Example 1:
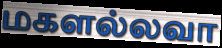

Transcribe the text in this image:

மகளல்லவா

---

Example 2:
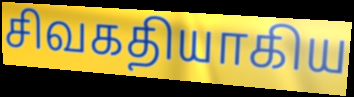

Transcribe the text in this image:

சிவகதியாகிய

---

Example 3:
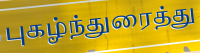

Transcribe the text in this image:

புகழ்ந்துரைத்து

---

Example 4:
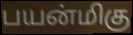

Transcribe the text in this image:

பயன்மிகு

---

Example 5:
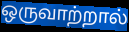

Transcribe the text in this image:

ஒருவாற்றால்